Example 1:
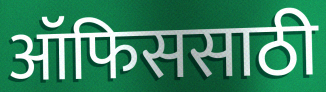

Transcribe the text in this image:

ऑफिससाठी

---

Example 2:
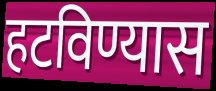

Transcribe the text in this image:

हटविण्यास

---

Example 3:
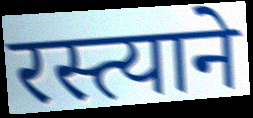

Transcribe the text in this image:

रस्त्याने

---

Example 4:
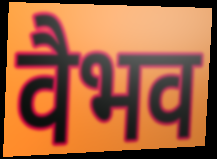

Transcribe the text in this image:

वैभव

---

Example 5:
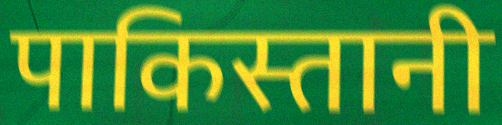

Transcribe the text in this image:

पाकिस्तानी